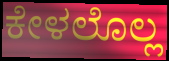
ಕೇಳಲೊಲ್ಲ